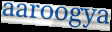
aaroogya